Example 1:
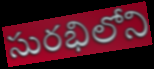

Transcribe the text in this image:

సురభిలోని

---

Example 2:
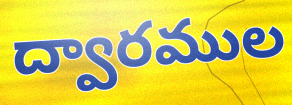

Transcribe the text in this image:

ద్వారముల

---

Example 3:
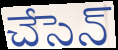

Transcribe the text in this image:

చేసెన్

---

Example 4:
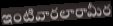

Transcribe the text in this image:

ఇంటివారలారామీర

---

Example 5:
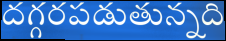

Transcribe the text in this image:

దగ్గరపడుతున్నది